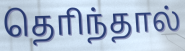
தெரிந்தால்